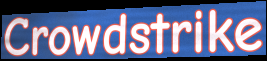
Crowdstrike